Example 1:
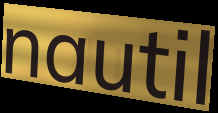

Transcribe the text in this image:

nautil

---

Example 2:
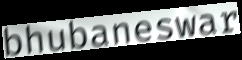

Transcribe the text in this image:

bhubaneswar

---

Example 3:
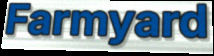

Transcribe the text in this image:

Farmyard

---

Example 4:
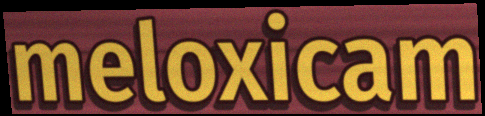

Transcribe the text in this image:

meloxicam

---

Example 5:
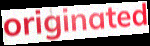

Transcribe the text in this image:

originated